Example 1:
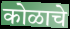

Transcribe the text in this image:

कोळाचे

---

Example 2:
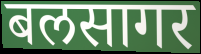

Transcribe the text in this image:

बलसागर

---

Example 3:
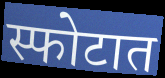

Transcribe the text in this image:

स्फोटात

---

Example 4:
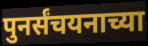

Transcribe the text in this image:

पुनर्संचयनाच्या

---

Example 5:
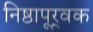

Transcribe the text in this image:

निष्ठापूर्वक